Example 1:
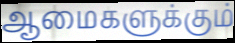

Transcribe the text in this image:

ஆமைகளுக்கும்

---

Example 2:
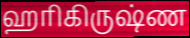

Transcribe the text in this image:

ஹரிகிருஷ்ண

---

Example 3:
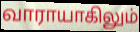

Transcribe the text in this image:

வாராயாகிலும்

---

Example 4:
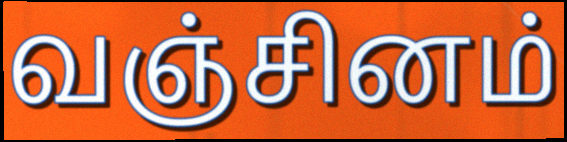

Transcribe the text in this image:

வஞ்சினம்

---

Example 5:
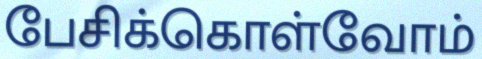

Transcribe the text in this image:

பேசிக்கொள்வோம்